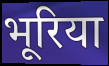
भूरिया